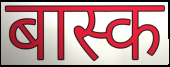
बास्क